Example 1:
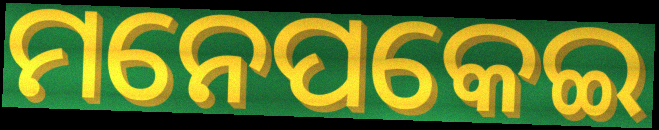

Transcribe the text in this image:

ମନେପକେଇ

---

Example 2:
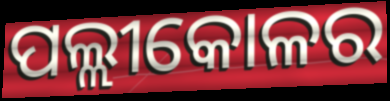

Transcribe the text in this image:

ପଲ୍ଲୀକୋଳର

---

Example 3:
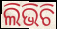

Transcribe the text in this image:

ଲିଭିଚି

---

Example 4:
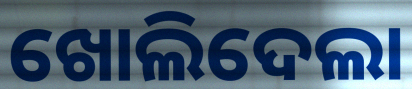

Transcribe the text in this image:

ଖୋଲିଦେଲା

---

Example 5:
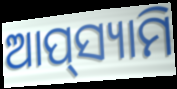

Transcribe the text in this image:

ଆପ୍‌ସ୍ୟାମି